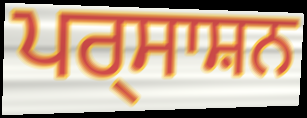
ਪਰ੍ਸਾਸ਼ਨ